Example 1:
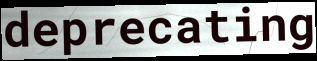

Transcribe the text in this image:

deprecating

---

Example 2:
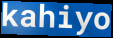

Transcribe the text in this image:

kahiyo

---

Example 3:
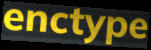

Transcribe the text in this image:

enctype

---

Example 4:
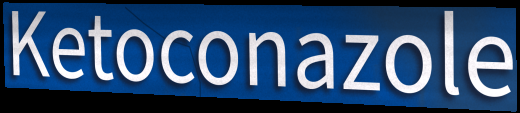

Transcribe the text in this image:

Ketoconazole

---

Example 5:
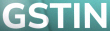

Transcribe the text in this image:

GSTIN